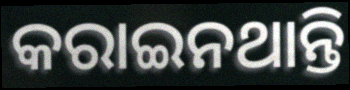
କରାଇନଥାନ୍ତି